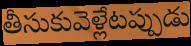
తీసుకువెళ్లేటప్పుడు